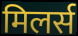
मिलर्स